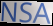
NSA